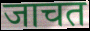
जाचत